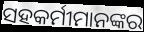
ସହକର୍ମୀମାନଙ୍କର